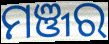
ମଞ୍ଜର